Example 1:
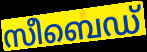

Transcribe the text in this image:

സീബെഡ്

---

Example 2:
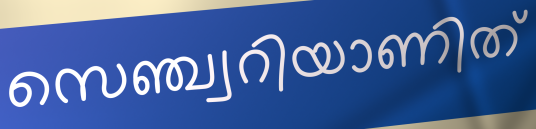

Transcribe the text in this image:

സെഞ്ച്വറിയാണിത്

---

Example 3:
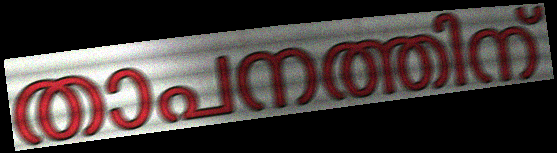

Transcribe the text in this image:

താപനത്തിന്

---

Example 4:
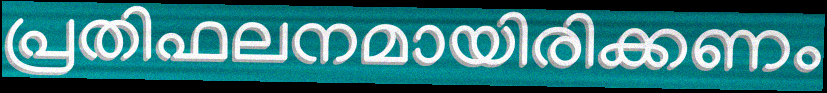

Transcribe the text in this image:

പ്രതിഫലനമായിരിക്കണം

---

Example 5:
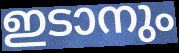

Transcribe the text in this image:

ഇടാനും